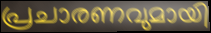
പ്രചാരണവുമായി